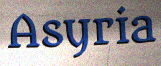
Asyria